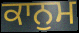
ਕਾਨੁਮ